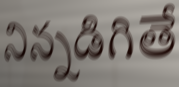
నిన్నడిగితే